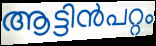
ആട്ടിൻപറ്റം